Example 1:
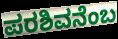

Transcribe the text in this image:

ಪರಶಿವನೆಂಬ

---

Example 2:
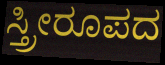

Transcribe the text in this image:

ಸ್ತ್ರೀರೂಪದ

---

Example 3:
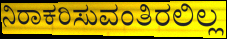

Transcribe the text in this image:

ನಿರಾಕರಿಸುವಂತಿರಲಿಲ್ಲ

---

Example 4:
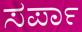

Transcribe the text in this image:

ಸರ್ಪಾ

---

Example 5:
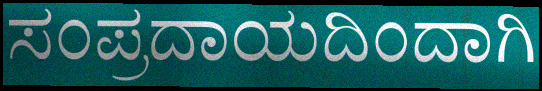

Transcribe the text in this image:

ಸಂಪ್ರದಾಯದಿಂದಾಗಿ